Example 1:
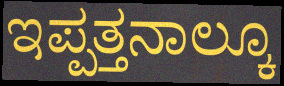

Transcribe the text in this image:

ಇಪ್ಪತ್ತನಾಲ್ಕೂ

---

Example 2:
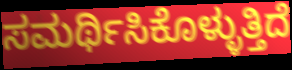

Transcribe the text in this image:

ಸಮರ್ಥಿಸಿಕೊಳ್ಳುತ್ತಿದೆ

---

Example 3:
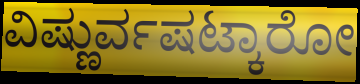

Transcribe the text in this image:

ವಿಷ್ಣುರ್ವಷಟ್ಕಾರೋ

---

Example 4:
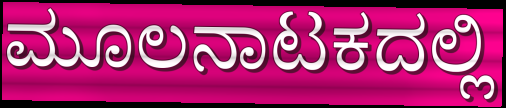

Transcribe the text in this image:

ಮೂಲನಾಟಕದಲ್ಲಿ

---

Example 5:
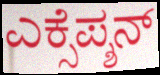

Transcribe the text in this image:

ಎಕ್ಸೆಪ್ಶನ್